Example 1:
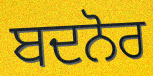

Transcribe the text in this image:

ਬਦਨੋਰ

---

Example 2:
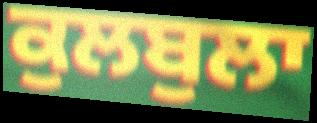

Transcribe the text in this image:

ਕੁਲਬੁਲਾ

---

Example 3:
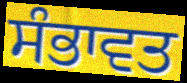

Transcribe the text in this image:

ਸੰਭਾਵਤ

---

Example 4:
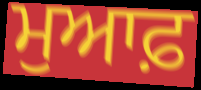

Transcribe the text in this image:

ਮੁਆਫ਼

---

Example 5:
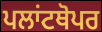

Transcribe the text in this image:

ਪਲਾਂਟਥੋਪਰ